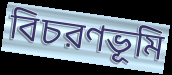
বিচরণভূমি